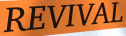
REVIVAL